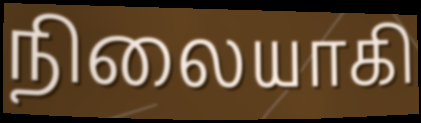
நிலையாகி